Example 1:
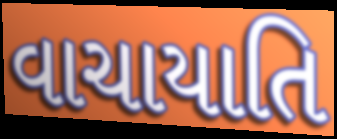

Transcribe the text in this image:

વાચાયાતિ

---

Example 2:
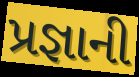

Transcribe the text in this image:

પ્રજ્ઞાની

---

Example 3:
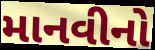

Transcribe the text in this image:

માનવીનો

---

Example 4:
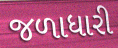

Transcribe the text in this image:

જળાધારી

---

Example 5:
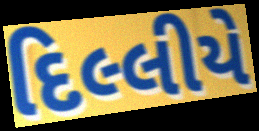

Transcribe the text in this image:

દિલ્લીયે